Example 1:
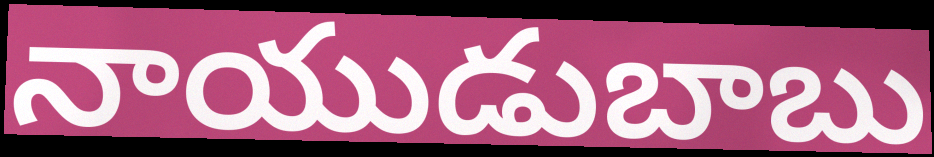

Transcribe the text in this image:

నాయుడుబాబు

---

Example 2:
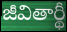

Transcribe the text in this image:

జీవితార్థీ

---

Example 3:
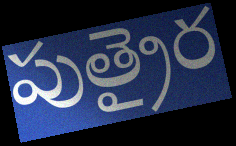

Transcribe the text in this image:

పుత్రైర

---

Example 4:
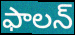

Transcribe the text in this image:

ఫాలన్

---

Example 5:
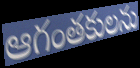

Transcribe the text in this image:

ఆగంతకులను